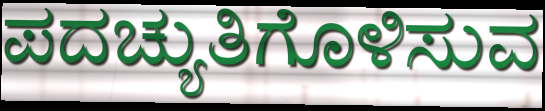
ಪದಚ್ಯುತಿಗೊಳಿಸುವ